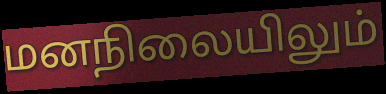
மனநிலையிலும்